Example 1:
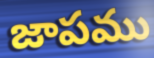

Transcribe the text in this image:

జాపము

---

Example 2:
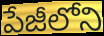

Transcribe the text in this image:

పేజీలోని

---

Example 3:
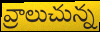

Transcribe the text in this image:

వ్రాలుచున్న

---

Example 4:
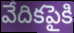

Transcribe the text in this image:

వేదికపైకి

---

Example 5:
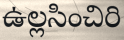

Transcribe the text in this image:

ఉల్లసించిరి